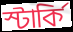
স্টার্কি